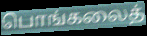
பொங்கலைத்